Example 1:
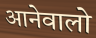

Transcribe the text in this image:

आनेवालो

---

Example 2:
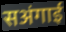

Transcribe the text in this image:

सअंगाई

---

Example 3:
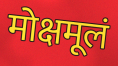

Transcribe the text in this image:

मोक्षमूलं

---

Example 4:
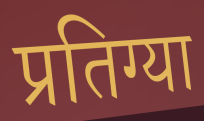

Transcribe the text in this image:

प्रतिग्या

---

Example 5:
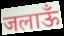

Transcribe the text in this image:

जलाऊँ